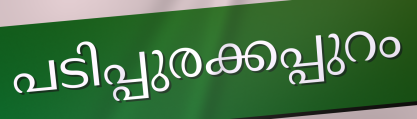
പടിപ്പുരക്കപ്പുറം